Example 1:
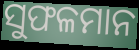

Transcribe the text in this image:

ସୁଫଳମାନ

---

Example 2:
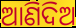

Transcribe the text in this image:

ଆଣିଦିଅ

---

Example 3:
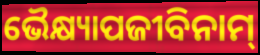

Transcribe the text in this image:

ଭୈକ୍ଷ୍ୟାପଜୀବିନାମ୍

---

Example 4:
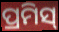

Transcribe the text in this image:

ପ୍ରମିସ୍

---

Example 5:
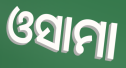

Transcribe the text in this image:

ଓସାମା